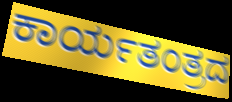
ಕಾರ್ಯತಂತ್ರದ